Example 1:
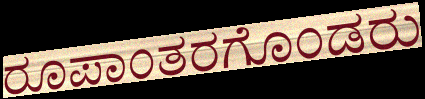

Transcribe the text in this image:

ರೂಪಾಂತರಗೊಂಡರು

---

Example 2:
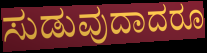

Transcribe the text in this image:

ಸುಡುವುದಾದರೂ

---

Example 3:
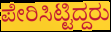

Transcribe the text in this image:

ಪೇರಿಸಿಟ್ಟಿದ್ದರು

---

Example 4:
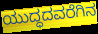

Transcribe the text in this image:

ಯುದ್ಧದವರೆಗಿನ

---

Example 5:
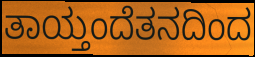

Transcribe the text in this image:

ತಾಯ್ತಂದೆತನದಿಂದ